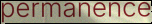
permanence